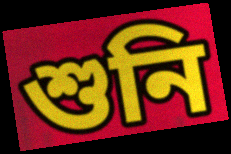
শুনি